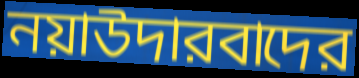
নয়াউদারবাদের